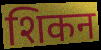
शिकन